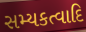
સમ્યકત્વાદિ